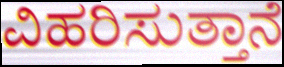
ವಿಹರಿಸುತ್ತಾನೆ